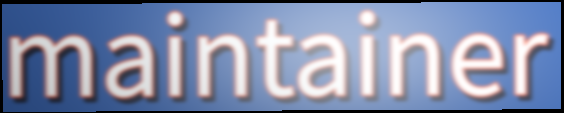
maintainer